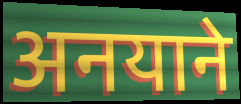
अनयाने